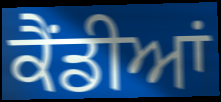
ਕੈਂਡੀਆਂ